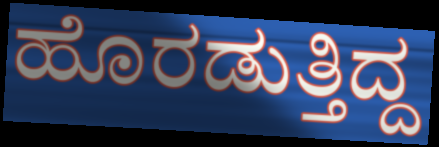
ಹೊರಡುತ್ತಿದ್ದ